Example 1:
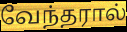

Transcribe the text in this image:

வேந்தரால்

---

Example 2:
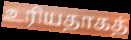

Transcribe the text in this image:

உரியதாகத்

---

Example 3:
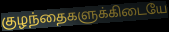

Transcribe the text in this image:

குழந்தைகளுக்கிடையே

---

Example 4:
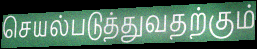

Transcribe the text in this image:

செயல்படுத்துவதற்கும்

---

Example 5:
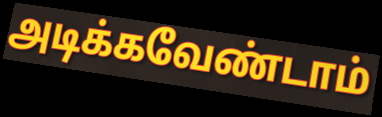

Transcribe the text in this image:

அடிக்கவேண்டாம்